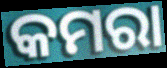
କମରା